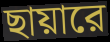
ছায়ারে